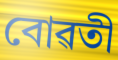
বোৱতী